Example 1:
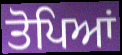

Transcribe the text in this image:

ਤੋਪਿਆਂ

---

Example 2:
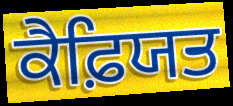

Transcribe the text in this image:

ਕੈਫ਼ਿਯਤ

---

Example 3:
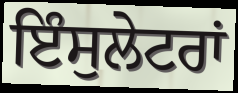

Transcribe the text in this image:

ਇੰਸੁਲੇਟਰਾਂ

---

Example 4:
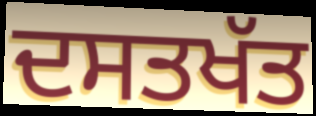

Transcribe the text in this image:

ਦਸਤਖੱਤ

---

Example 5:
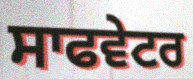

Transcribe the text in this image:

ਸਾਫਵੇਟਰ